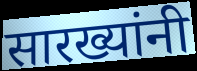
सारख्यांनी